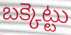
బక్కెట్టు